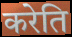
करेति